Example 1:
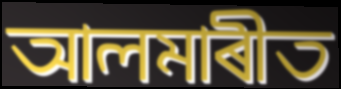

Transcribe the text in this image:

আলমাৰীত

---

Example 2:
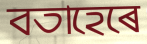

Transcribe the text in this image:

বতাহেৰে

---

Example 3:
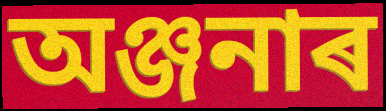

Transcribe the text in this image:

অঞ্জনাৰ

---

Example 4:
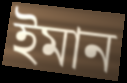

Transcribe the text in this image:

ইমান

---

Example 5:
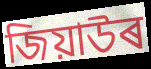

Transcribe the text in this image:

জিয়াউৰ